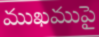
ముఖముపై